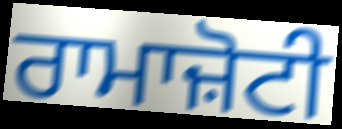
ਰਾਮਾਜ਼ੋਟੀ